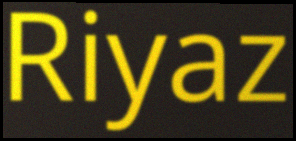
Riyaz